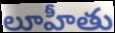
లూహీతు